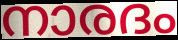
നാരദം